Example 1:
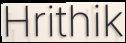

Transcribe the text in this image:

Hrithik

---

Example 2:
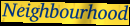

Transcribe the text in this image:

Neighbourhood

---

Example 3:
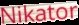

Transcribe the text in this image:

Nikator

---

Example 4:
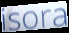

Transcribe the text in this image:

isora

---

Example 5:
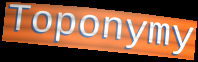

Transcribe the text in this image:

Toponymy